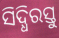
ସିଦ୍ଧିରସ୍ତୁ